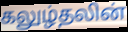
கலுழ்தலின்